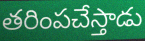
తరింపచేస్తాడు